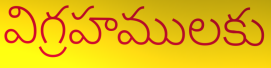
విగ్రహములకు